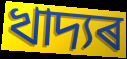
খাদ্যৰ